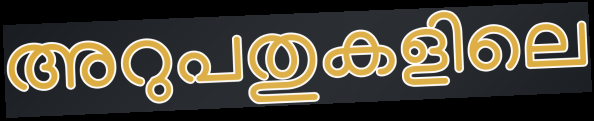
അറുപതുകളിലെ